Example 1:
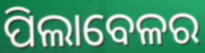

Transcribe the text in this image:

ପିଲାବେଳର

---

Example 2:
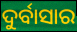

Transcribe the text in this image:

ଦୁର୍ବାସାର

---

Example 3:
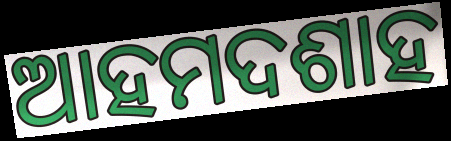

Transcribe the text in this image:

ଆହମଦଶାହ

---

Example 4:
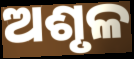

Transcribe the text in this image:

ଅଶୃଳ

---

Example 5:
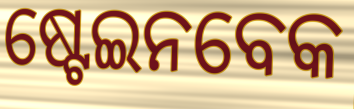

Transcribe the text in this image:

ଷ୍ଟେଇନବେକ